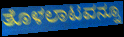
ತೊಳಲಾಟವನ್ನೂ